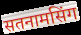
सतनामसिंग